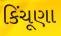
કિંચૂણા